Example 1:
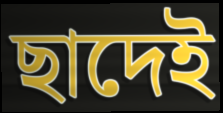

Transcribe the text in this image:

ছাদেই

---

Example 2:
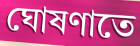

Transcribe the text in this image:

ঘোষণাতে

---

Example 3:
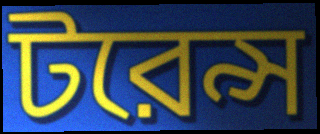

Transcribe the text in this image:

টরেন্স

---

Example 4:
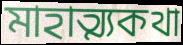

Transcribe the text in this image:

মাহাত্ম্যকথা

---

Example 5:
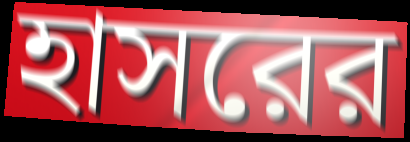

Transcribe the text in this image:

হাসরের